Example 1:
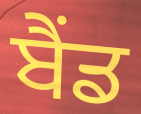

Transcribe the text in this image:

ਬੈੰਡ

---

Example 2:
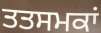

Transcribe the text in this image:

ਤਤਸਮਕਾਂ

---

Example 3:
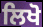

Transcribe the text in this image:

ਲਿਖੋ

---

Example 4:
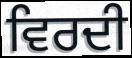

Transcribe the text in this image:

ਵਿਰਦੀ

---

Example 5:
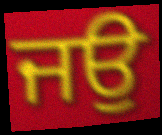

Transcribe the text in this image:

ਜਉ